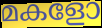
മകളോ